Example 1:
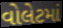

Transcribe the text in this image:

વોલેટમાં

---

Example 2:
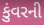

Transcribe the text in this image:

કુંવરની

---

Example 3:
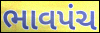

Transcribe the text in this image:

ભાવપંચ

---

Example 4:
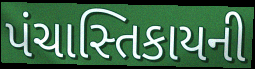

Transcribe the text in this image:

પંચાસ્તિકાયની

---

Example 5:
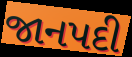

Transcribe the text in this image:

જાનપદી